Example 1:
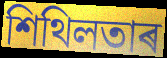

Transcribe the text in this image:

শিথিলতাৰ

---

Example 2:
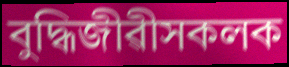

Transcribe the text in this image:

বুদ্ধিজীৱীসকলক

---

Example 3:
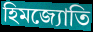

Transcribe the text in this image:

হিমজ্যোতি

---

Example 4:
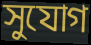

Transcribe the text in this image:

সুযোগ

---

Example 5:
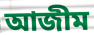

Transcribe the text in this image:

আজীম